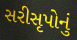
સરીસૃપોનું